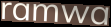
ramwa